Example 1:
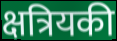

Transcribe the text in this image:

क्षत्रियकी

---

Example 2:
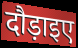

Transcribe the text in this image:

दौड़ाइए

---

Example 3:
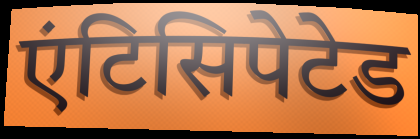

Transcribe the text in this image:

एंटिसिपेटेड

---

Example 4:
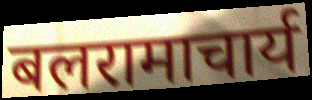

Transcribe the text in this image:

बलरामाचार्य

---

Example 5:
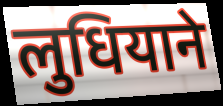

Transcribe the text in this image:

लुधियाने